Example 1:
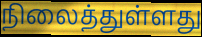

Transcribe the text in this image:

நிலைத்துள்ளது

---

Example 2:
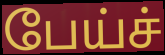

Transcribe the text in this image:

பேய்ச்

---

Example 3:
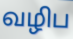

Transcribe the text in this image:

வழிப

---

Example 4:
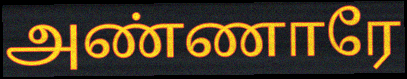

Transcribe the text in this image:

அண்ணாரே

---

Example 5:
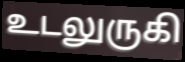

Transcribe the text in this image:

உடலுருகி